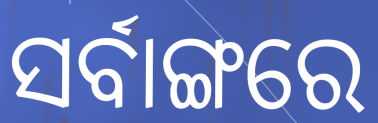
ସର୍ବାଙ୍ଗରେ